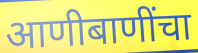
आणीबाणींचा